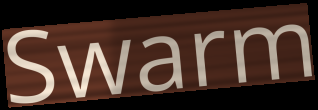
Swarm